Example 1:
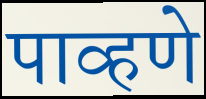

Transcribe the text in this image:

पाव्हणे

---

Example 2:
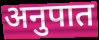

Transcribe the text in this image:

अनुपात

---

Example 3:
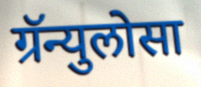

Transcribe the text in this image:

ग्रॅन्युलोसा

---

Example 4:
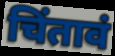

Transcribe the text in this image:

चिंतावं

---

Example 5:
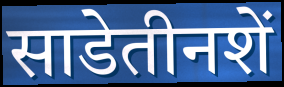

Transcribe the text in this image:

साडेतीनशें